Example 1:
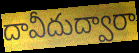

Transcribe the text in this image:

దావీదుద్వారా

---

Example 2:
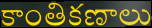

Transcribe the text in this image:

కాంతికణాలు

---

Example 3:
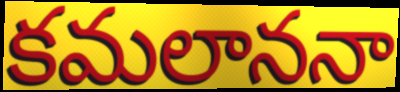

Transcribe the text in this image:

కమలాననా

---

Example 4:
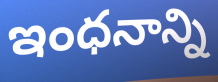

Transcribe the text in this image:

ఇంధనాన్ని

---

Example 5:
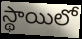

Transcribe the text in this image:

స్థాయిలో